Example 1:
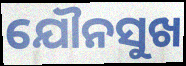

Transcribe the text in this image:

ଯୌନସୁଖ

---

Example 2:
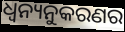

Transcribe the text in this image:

ଧ୍ବନ୍ୟନୁକରଣର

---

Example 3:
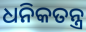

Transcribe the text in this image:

ଧନିକତନ୍ତ୍ର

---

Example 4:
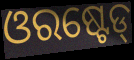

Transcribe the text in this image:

ଓରଷ୍ଟେଡ୍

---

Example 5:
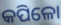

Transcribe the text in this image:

କପିଳୋ